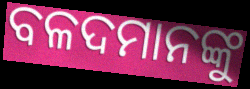
ବଳଦମାନଙ୍କୁ